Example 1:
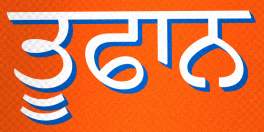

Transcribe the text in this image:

ਤੂਫਾਨ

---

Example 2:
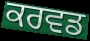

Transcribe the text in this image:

ਕਰਵਡ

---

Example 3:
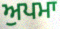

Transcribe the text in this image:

ਅੁਪਮਾ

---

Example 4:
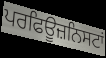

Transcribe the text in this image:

ਪਰਫਿਊਜ਼ਨਿਸਟਾਂ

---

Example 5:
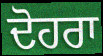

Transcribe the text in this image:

ਦੋਹਰਾ